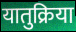
यातुक्रिया